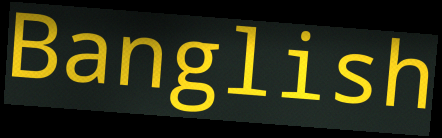
Banglish